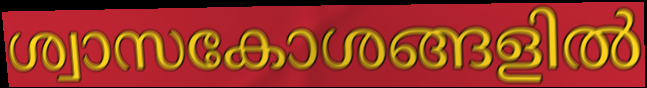
ശ്വാസകോശങ്ങളിൽ